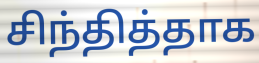
சிந்தித்தாக